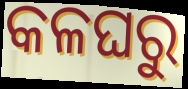
କଳଘରୁ